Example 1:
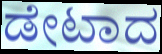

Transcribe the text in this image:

ಡೇಟಾದ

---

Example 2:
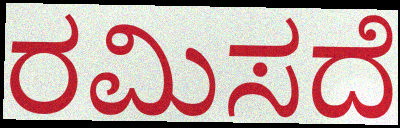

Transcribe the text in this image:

ರಮಿಸದೆ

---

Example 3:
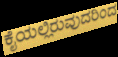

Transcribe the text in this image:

ಕೈಯಲ್ಲಿರುವುದರಿಂದ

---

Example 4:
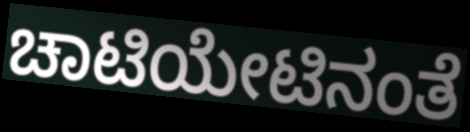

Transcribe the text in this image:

ಚಾಟಿಯೇಟಿನಂತೆ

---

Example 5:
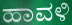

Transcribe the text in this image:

ಹಾವಳಿ